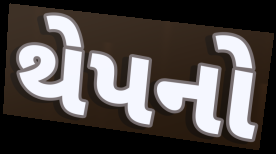
થેપનો